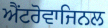
ਐਂਟਰੋਵਾਜਿਨਲ